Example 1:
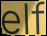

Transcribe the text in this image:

elf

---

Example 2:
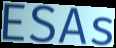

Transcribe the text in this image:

ESAs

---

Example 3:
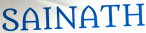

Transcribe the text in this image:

SAINATH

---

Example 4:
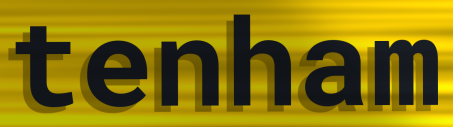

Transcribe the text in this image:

tenham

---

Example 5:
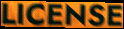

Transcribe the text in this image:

LICENSE